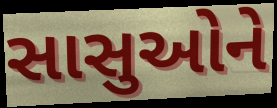
સાસુઓને